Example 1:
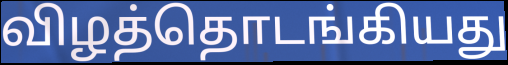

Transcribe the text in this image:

விழத்தொடங்கியது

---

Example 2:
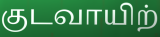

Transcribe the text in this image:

குடவாயிற்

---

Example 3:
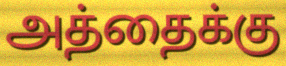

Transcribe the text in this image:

அத்தைக்கு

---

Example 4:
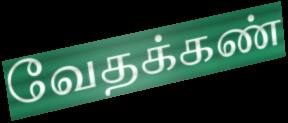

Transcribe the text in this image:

வேதக்கண்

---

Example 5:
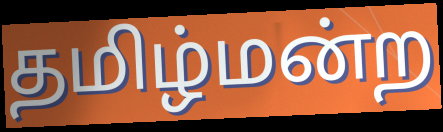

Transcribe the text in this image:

தமிழ்மன்ற